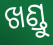
ଖଣ୍ଡୁ